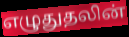
எழுதுதலின்